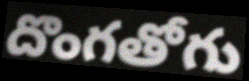
దొంగతోగు